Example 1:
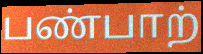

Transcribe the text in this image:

பண்பாற்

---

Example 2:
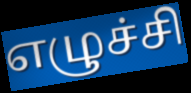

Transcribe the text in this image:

எழுச்சி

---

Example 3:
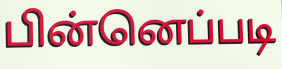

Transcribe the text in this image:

பின்னெப்படி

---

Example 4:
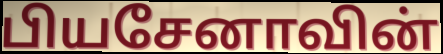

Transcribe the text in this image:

பியசேனாவின்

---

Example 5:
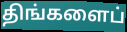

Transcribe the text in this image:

திங்களைப்